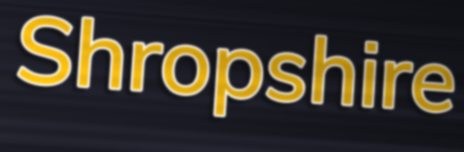
Shropshire